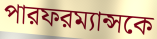
পারফরম্যান্সকে